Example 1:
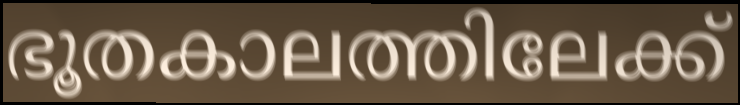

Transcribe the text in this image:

ഭൂതകാലത്തിലേക്ക്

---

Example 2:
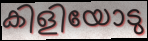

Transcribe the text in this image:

കിളിയോടു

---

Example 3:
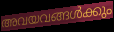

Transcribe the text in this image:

അവയവങ്ങൾക്കും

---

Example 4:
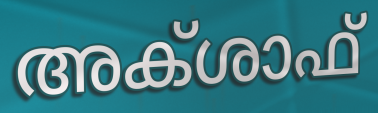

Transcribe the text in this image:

അക്ശാഫ്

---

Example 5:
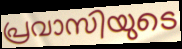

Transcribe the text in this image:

പ്രവാസിയുടെ